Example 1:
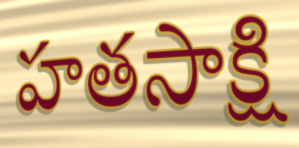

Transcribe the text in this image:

హతసాక్షి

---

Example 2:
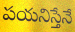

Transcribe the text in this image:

పయనిస్తేనే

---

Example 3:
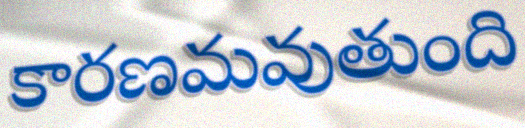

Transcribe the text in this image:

కారణమవుతుంది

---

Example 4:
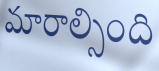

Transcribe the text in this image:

మారాల్సింది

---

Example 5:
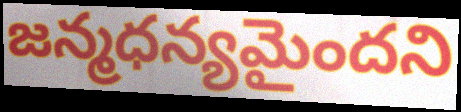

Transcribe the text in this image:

జన్మధన్యమైందని